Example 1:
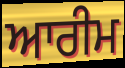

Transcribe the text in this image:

ਆਰੀਮ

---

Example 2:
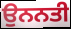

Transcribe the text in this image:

ਉਨਨਤੀ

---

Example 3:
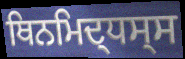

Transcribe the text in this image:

ਥਿਨਮਿਦ੍ਧਸ੍ਸ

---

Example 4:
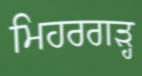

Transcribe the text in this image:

ਮਿਹਰਗੜ੍ਹ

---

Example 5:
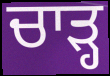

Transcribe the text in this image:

ਚਾਡ਼੍ਹ